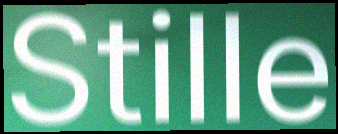
Stille